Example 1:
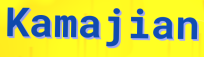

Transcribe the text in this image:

Kamajian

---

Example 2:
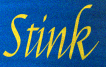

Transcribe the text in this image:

Stink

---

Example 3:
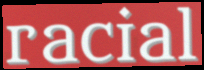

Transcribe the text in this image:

racial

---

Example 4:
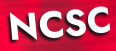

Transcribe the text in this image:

NCSC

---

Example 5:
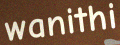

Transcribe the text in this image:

wanithi